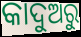
କାଦୁଅରୁ